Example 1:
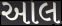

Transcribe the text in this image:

આલ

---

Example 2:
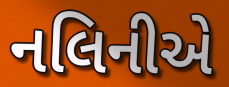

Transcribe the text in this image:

નલિનીએ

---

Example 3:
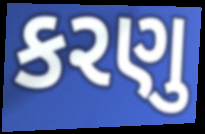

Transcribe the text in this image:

કરણુ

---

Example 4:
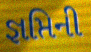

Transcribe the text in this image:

જ્ઞપ્તિની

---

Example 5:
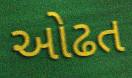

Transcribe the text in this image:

ઓઢત